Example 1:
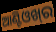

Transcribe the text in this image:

ଆଣ୍ଟିଓଖ୍‍ର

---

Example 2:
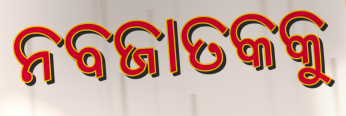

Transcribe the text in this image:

ନବଜାତକକୁ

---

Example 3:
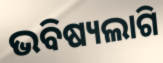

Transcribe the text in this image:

ଭବିଷ୍ୟଲାଗି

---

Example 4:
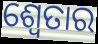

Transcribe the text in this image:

ଶ୍ଵେତାର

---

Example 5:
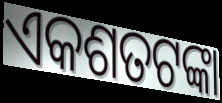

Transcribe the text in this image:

ଏକଶତଟଙ୍କା